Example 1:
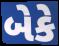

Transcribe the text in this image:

બેકે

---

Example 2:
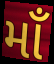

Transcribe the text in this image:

માઁ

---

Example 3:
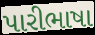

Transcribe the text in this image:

પારીભાષા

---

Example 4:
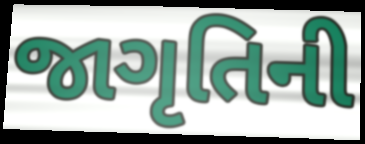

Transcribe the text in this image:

જાગૃતિની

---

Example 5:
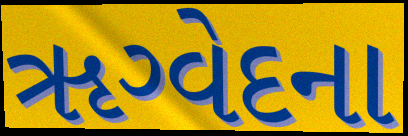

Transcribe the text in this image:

ૠગ્વેદના